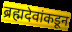
ब्रह्मदेवांकडून